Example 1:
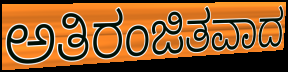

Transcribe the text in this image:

ಅತಿರಂಜಿತವಾದ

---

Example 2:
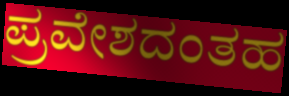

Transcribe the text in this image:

ಪ್ರವೇಶದಂತಹ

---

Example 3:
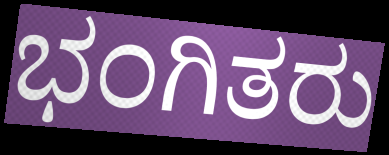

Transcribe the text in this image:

ಭಂಗಿತರು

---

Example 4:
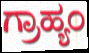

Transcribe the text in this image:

ಗ್ರಾಹ್ಯಂ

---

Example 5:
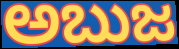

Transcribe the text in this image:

ಅಬುಜ